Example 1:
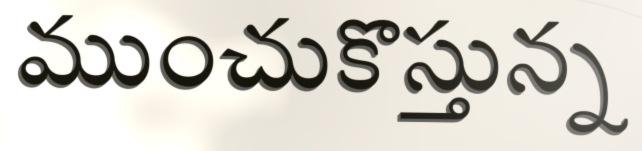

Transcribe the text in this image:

ముంచుకొస్తున్న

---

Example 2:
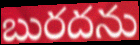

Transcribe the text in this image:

బురదను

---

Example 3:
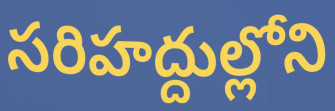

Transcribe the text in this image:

సరిహద్దుల్లోని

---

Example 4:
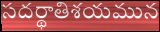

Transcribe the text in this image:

సదర్థాతిశయమున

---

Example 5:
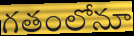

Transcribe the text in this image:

గతంలోనూ